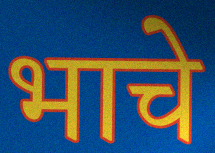
भाचे